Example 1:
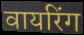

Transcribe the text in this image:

वायरिंग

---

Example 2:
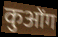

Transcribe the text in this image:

कुओंग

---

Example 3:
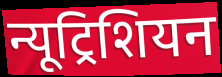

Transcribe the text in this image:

न्यूट्रिशियन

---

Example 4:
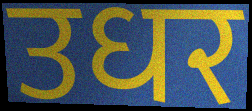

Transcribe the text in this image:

उधर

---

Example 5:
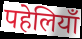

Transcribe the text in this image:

पहेलियाँ